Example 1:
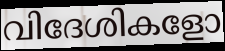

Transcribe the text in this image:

വിദേശികളോ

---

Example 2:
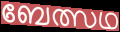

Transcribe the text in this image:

ബേത്സഥ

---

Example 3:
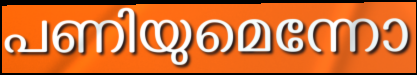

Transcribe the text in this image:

പണിയുമെന്നോ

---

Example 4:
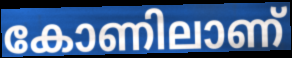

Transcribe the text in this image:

കോണിലാണ്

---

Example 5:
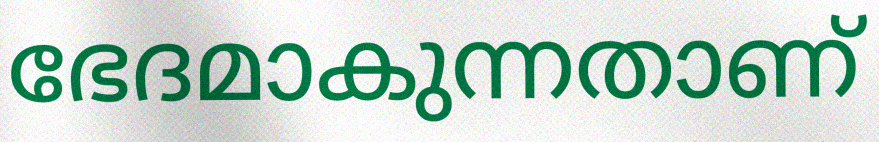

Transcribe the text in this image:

ഭേദമാകുന്നതാണ്